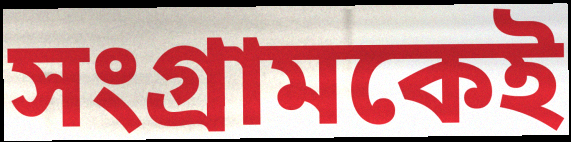
সংগ্রামকেই